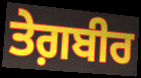
ਤੇਗ਼ਬੀਰ